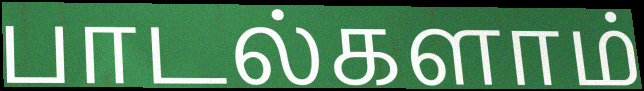
பாடல்களாம்